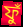
ফুঁ